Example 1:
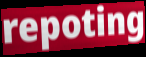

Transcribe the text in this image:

repoting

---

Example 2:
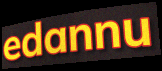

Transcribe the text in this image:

edannu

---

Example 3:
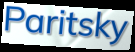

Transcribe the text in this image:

Paritsky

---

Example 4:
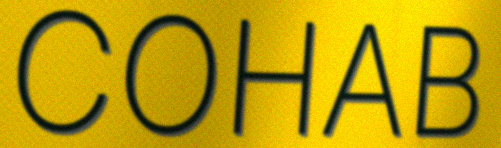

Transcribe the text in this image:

COHAB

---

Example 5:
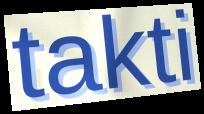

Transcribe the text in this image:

takti